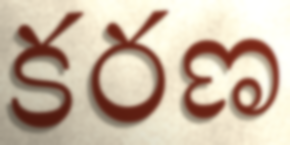
కరణ